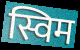
स्विम